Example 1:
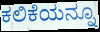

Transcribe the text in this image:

ಕಲಿಕೆಯನ್ನೂ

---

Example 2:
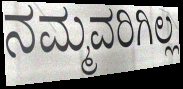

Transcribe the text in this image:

ನಮ್ಮವರಿಗಿಲ್ಲ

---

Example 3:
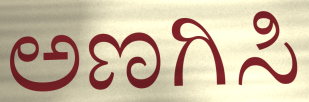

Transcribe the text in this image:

ಅಣಗಿಸಿ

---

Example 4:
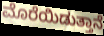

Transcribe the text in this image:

ಮೊರೆಯಿಡುತ್ತಾನೆ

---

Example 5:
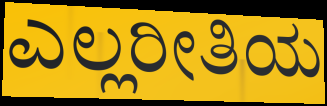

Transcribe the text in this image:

ಎಲ್ಲರೀತಿಯ